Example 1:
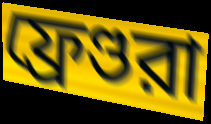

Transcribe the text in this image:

ফ্রেণ্ডরা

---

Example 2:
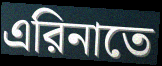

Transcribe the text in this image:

এরিনাতে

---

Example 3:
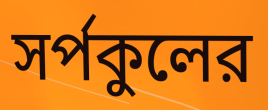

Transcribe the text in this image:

সর্পকুলের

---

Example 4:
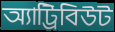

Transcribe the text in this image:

অ্যাট্রিবিউট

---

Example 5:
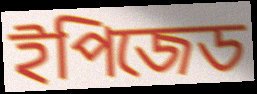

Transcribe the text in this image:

ইপিজেড